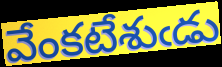
వేంకటేశుఁడు